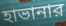
হাভানার